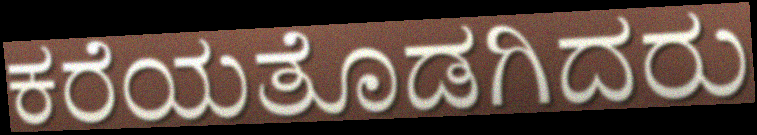
ಕರೆಯತೊಡಗಿದರು